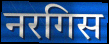
नरगिस